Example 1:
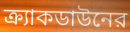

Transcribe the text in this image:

ক্র্যাকডাউনের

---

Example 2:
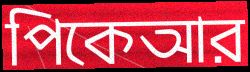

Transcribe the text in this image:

পিকেআর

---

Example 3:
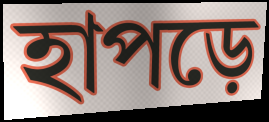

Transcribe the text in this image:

হাপড়ে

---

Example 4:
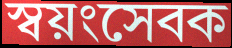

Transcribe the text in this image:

স্বয়ংসেবক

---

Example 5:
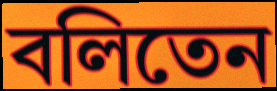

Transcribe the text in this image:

বলিতেন